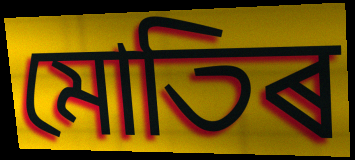
মোতিৰ